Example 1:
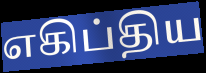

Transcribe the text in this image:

எகிப்திய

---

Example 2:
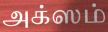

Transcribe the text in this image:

அக்ஸம்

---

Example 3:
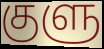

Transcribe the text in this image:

குளு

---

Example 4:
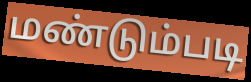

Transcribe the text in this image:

மண்டும்படி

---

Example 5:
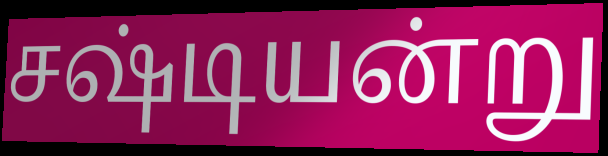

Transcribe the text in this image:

சஷ்டியன்று